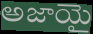
అజాయై